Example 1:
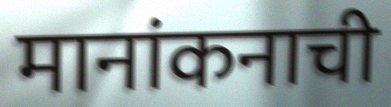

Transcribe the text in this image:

मानांकनाची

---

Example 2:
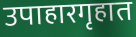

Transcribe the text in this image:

उपाहारगृहात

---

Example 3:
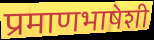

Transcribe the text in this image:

प्रमाणभाषेशी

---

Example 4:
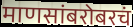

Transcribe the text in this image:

माणसांबरोबरचं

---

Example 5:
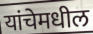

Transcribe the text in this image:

यांचेमधील